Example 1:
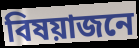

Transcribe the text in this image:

বিষয়াজনে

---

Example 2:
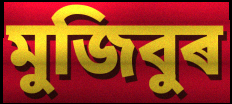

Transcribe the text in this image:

মুজিবুৰ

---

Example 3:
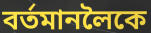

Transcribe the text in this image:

বৰ্তমানলৈকে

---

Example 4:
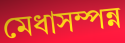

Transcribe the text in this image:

মেধাসম্পন্ন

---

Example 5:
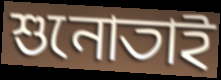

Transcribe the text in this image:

শুনোতাই